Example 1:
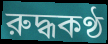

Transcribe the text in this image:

রুদ্ধকণ্ঠ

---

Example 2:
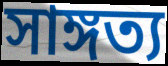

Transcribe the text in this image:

সাঙ্গত্য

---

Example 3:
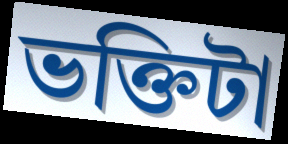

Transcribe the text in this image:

ভক্তিটা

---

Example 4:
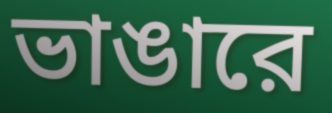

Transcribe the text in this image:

ভাঙারে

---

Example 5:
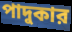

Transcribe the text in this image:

পাদুকার